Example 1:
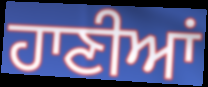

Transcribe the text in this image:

ਹਾਣੀਆਂ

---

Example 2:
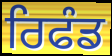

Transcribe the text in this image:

ਰਿਫੰਡ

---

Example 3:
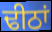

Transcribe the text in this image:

ਢੀਠਾਂ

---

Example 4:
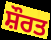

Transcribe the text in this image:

ਸ਼ੌਰਤ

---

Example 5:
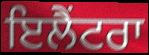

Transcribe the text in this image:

ਇਲੈਂਟਰਾ